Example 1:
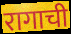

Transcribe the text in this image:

रागाची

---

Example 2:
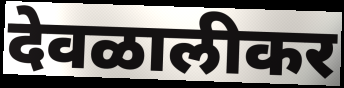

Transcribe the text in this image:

देवळालीकर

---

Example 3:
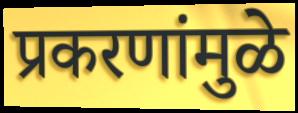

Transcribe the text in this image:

प्रकरणांमुळे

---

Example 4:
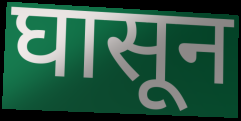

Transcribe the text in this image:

घासून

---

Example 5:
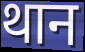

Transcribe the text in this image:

थान